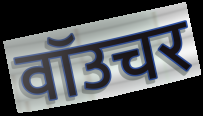
वॉउचर